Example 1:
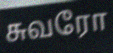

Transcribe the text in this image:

சுவரோ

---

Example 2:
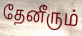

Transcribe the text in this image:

தேனீரும்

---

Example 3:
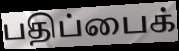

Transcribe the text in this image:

பதிப்பைக்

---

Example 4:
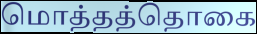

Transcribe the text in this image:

மொத்தத்தொகை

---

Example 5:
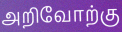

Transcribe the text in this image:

அறிவோற்கு